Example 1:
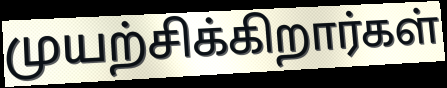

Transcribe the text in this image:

முயற்சிக்கிறார்கள்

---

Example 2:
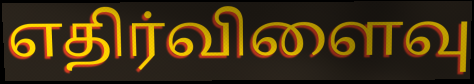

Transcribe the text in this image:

எதிர்விளைவு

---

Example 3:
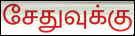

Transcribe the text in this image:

சேதுவுக்கு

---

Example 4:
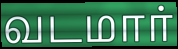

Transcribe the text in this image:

வடமார்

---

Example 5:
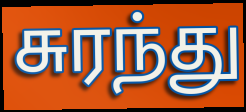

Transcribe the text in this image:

சுரந்து